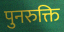
पुनरुक्ति